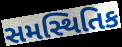
સમસ્થિતિક